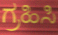
ಗ್ರಹಿಸಿ